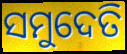
ସମୁଦେତି